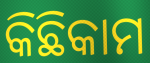
କିଛିକାମ